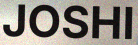
JOSHI